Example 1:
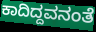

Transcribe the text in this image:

ಕಾದಿದ್ದವನಂತೆ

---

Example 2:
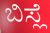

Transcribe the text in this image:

ಬಿಸ್ಲೆ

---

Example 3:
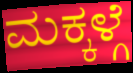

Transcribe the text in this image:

ಮಕ್ಕಳ್ಗೆ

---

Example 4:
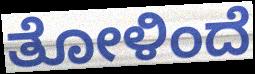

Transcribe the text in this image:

ತೋಳಿಂದೆ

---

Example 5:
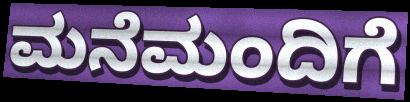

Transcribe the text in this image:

ಮನೆಮಂದಿಗೆ